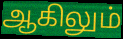
ஆகிலும்